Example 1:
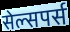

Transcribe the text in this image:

सेल्सपर्स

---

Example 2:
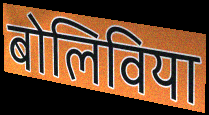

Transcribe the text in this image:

बोलिविया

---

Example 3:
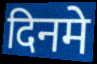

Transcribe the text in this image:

दिनमे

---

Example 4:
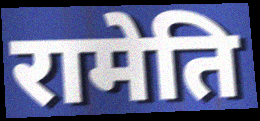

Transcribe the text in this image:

रामेति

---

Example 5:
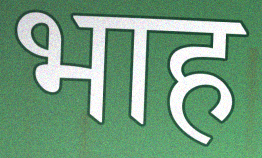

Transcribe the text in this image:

भाह